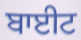
ਬਾਈਟ